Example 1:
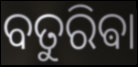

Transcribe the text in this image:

ବତୁରିଵା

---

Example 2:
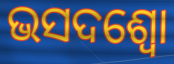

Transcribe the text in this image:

ଭସଦଶ୍ଵୋ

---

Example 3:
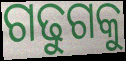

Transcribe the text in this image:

ଗଢୁଗକୁ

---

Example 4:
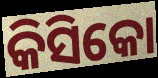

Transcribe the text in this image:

କିସିକୋ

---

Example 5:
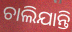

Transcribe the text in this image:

ଚାଲିଯାନ୍ତି